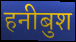
हनीबुश